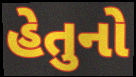
હેતુનો